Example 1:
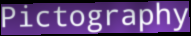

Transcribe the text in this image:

Pictography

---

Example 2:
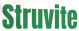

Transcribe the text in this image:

Struvite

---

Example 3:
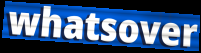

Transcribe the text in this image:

whatsover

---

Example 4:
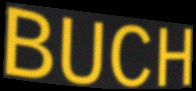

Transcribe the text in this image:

BUCH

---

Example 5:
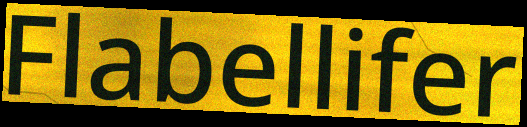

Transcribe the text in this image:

Flabellifer